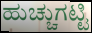
ಹುಚ್ಚುಗಟ್ಟಿ